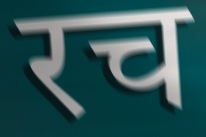
रच